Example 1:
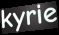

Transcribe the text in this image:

kyrie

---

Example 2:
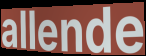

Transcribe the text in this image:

allende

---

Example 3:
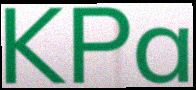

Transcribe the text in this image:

KPa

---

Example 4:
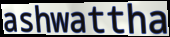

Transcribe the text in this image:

ashwattha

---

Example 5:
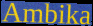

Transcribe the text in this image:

Ambika